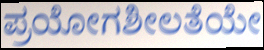
ಪ್ರಯೋಗಶೀಲತೆಯೇ